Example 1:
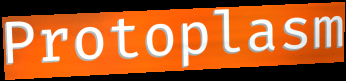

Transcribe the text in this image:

Protoplasm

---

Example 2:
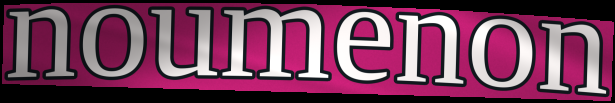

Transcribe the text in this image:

noumenon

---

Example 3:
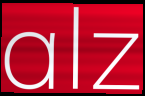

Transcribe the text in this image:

alz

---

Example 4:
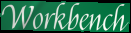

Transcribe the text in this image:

Workbench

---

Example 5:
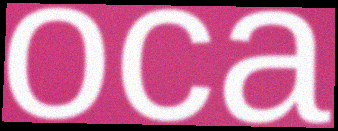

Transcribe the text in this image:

oca